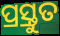
ପ୍ର୍ରସ୍ତୁତ